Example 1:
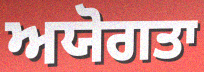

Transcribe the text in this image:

ਅਯੋਗਤਾ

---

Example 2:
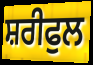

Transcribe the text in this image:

ਸ਼ਰੀਫੁਲ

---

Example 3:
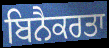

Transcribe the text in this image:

ਬਿਨੈਕਰਤਾ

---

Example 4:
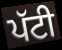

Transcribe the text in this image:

ਪੱਟੀ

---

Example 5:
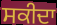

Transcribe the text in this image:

ਸਕੀਦਾ